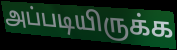
அப்படியிருக்க